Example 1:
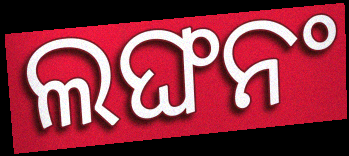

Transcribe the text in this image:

ଲଙ୍ଘନଂ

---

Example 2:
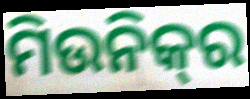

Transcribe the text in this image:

ମିଉନିକ୍‌ର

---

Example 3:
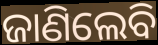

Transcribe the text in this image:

ଜାଣିଲେବି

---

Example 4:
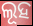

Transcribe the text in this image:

ଲୂହ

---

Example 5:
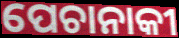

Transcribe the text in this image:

ପେଚାନାକୀ